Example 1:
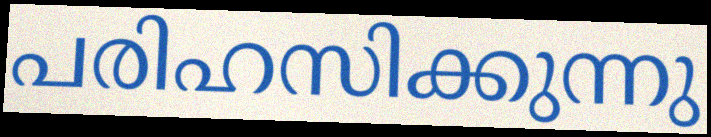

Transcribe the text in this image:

പരിഹസിക്കുന്നു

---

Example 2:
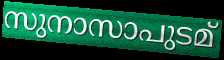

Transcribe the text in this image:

സുനാസാപുടമ്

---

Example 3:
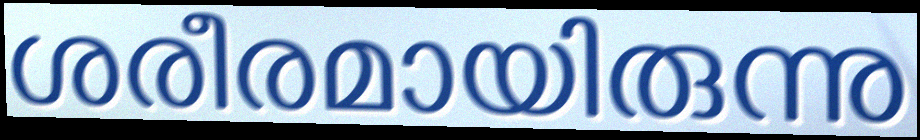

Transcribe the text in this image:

ശരീരമായിരുന്നു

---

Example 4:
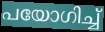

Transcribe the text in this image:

പയോഗിച്ച്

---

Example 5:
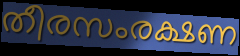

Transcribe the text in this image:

തീരസംരക്ഷണ